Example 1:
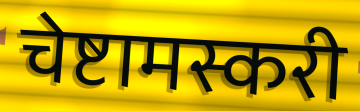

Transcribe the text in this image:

चेष्टामस्करी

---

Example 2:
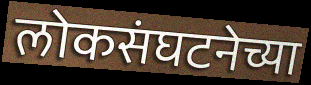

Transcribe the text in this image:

लोकसंघटनेच्या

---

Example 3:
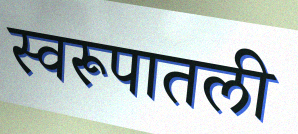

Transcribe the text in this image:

स्वरूपातली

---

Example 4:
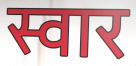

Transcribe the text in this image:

स्वार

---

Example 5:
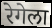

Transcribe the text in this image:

रेगेला